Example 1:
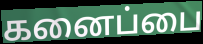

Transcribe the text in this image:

கனைப்பை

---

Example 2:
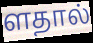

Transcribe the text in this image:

ளதால்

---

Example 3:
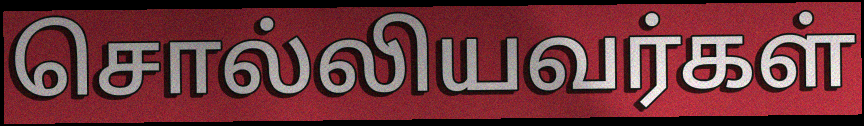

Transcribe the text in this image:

சொல்லியவர்கள்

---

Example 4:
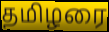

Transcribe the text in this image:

தமிழரை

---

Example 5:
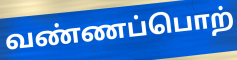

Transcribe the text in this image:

வண்ணப்பொற்